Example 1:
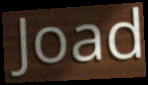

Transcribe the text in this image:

Joad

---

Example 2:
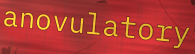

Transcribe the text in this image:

anovulatory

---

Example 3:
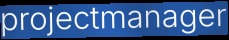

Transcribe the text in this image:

projectmanager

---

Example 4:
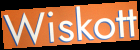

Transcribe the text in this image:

Wiskott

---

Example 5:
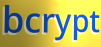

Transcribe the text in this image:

bcrypt